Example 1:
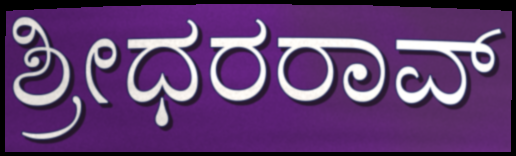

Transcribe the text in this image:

ಶ್ರೀಧರರಾವ್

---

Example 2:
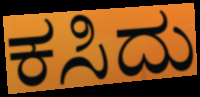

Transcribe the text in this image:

ಕಸಿದು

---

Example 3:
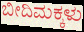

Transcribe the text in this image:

ಬೀದಿಮಕ್ಕಳು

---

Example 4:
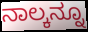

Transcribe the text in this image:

ನಾಲ್ಕನ್ನೂ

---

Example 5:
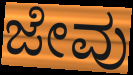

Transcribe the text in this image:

ಜೇವು